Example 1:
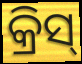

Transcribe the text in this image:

କ୍ରିସ୍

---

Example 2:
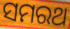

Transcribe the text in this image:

ସମରଥ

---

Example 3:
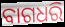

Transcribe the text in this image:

ବାଗଧରି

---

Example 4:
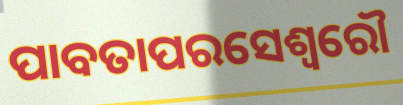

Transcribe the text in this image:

ପାବତାପରସେଶ୍ୱରୌ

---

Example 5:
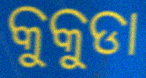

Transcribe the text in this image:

କୁକୁଡା